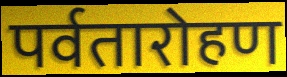
पर्वतारोहण